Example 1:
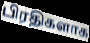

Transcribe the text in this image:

பிரதிகளாக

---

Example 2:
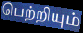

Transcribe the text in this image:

பெற்றியும்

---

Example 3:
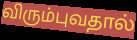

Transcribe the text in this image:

விரும்புவதால்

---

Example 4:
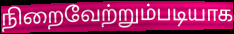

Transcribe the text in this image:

நிறைவேற்றும்படியாக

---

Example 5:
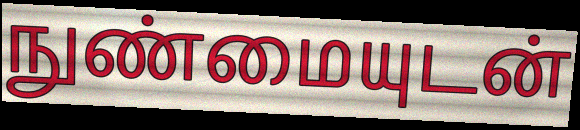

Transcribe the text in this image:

நுண்மையுடன்